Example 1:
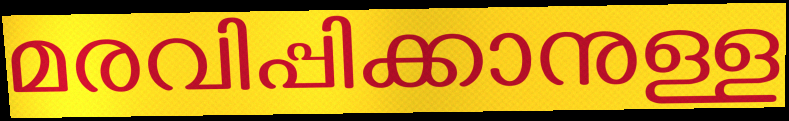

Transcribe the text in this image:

മരവിപ്പിക്കാനുള്ള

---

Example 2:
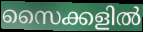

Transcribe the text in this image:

സൈക്കളിൽ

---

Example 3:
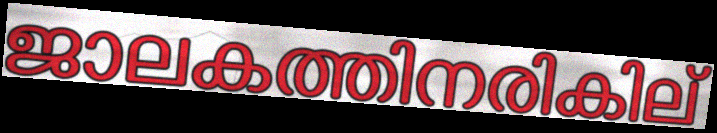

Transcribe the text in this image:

ജാലകത്തിനരികില്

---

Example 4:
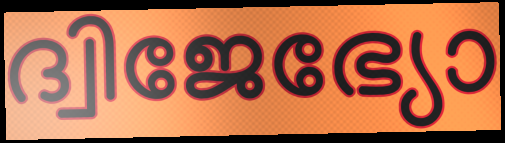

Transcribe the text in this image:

ദ്വിജേഭ്യോ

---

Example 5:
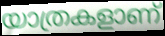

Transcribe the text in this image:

യാത്രകളാണ്